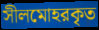
সীলমোহরকৃত